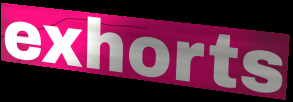
exhorts